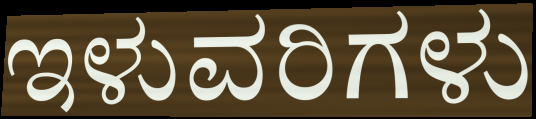
ಇಳುವರಿಗಳು